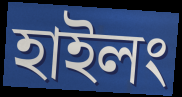
হাইলং